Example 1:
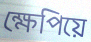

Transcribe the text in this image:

ক্ষেপিয়ে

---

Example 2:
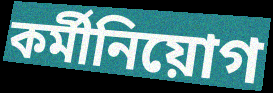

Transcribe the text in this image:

কর্মীনিয়োগ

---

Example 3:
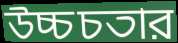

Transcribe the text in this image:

উচ্চচতার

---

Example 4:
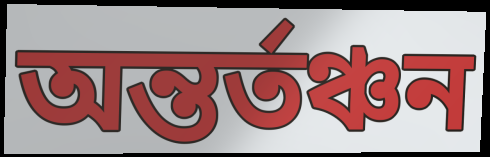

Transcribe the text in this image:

অন্তর্তঞ্চন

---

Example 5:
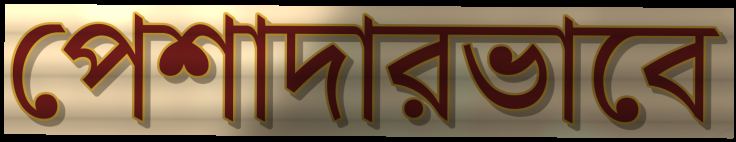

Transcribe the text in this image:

পেশাদারভাবে